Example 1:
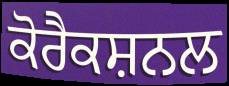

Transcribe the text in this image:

ਕੋਰੈਕਸ਼ਨਲ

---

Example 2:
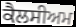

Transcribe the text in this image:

ਕੈਲਸੀਅਮ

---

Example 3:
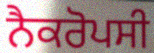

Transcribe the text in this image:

ਨੈਕਰੋਪਸੀ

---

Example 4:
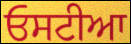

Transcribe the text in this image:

ਓਸਟੀਆ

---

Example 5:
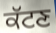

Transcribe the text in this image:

ਕੱਟਣ